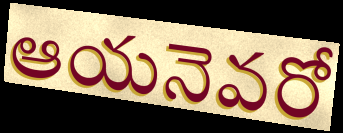
ఆయనెవరో